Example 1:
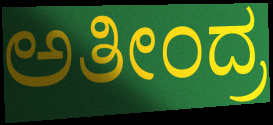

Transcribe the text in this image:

ಅತೀಂದ್ರ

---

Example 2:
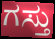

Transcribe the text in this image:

ಗಸ್ತು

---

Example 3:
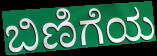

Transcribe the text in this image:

ಬಿಣಿಗೆಯ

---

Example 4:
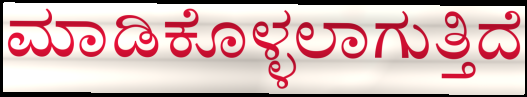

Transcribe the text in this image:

ಮಾಡಿಕೊಳ್ಳಲಾಗುತ್ತಿದೆ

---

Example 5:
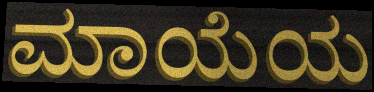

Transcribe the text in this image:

ಮಾಯೆಯ